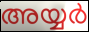
അയ്യർ